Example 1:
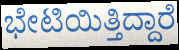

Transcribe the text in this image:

ಭೇಟಿಯಿತ್ತಿದ್ದಾರೆ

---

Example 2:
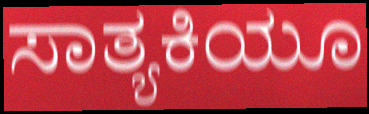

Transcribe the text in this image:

ಸಾತ್ಯಕಿಯೂ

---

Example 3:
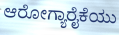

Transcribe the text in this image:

ಆರೋಗ್ಯಾರೈಕೆಯು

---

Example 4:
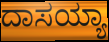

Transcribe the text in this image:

ದಾಸಯ್ಯಾ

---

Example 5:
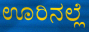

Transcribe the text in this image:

ಊರಿನಲ್ಲೆ